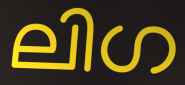
ലിഗ